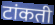
टांकती